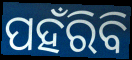
ପହଁରିବି